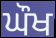
ਘੌਖ